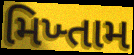
મિખ્તામ